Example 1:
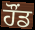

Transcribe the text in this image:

ਹੌਂਡ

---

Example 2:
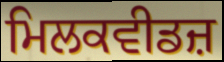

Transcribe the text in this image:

ਮਿਲਕਵੀਡਜ਼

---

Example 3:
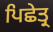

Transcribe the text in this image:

ਪਿਛੇਤ੍ਰ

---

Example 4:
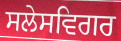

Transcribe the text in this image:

ਸਲੇਸਵਿਗਰ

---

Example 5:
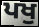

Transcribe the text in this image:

ਪਖੁ